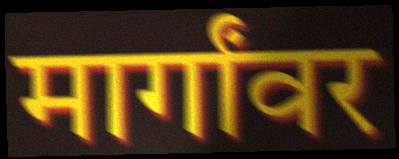
मार्गांवर